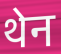
थेन